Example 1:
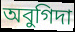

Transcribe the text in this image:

অবুগিদা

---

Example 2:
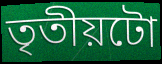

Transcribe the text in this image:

তৃতীয়টো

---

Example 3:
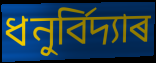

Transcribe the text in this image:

ধনুৰ্বিদ্যাৰ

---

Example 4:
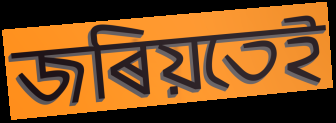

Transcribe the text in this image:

জৰিয়তেই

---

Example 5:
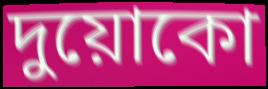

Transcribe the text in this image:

দুয়োকো